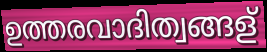
ഉത്തരവാദിത്വങ്ങള്